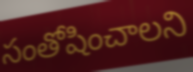
సంతోషించాలని